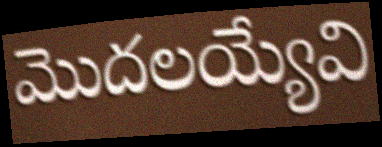
మొదలయ్యేవి